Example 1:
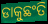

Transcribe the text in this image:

ଡାକୁଛଂତି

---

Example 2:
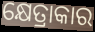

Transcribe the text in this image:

କ୍ଷେତ୍ରାକାର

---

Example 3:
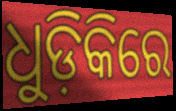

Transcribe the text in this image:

ଧୁଡ଼ିକିରେ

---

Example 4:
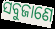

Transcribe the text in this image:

ସବୁଜାଣେ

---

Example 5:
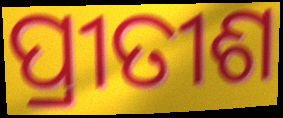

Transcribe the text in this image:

ପ୍ରୀତୀଶ